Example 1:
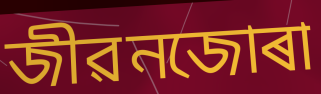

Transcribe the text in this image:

জীৱনজোৰা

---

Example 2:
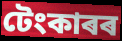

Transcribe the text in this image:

টেংকাৰৰ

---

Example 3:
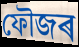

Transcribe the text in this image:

ফৌজৰ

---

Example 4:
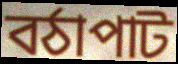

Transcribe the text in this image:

বঠাপাট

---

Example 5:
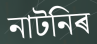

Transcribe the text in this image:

নাটনিৰ